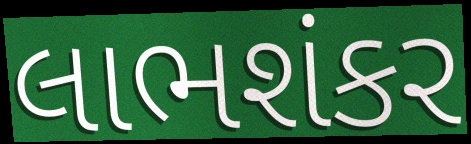
લાભશંકર